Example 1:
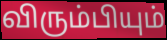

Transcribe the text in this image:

விரும்பியும்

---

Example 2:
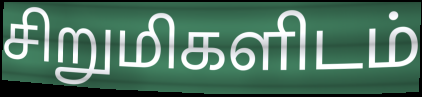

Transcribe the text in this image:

சிறுமிகளிடம்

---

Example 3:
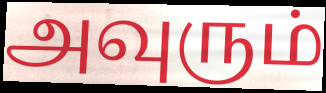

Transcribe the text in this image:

அவுரும்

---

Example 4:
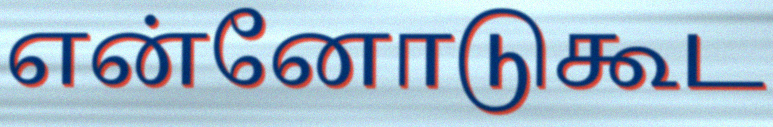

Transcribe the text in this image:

என்னோடுகூட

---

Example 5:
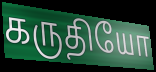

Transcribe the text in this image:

கருதியோ